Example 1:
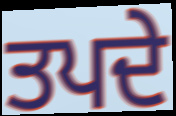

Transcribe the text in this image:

ਤਪਦੇ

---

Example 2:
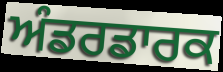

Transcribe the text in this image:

ਅੰਡਰਡਾਰਕ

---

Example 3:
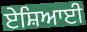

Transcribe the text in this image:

ਏਸ਼ਿਆਈ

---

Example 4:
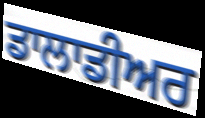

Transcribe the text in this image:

ਡਾਲਾਡੀਅਰ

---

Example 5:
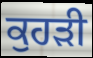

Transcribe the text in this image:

ਕੁਹੜੀ